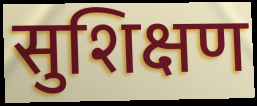
सुशिक्षण